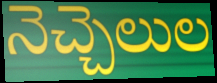
నెచ్చెలుల